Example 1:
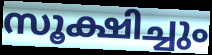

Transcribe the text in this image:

സൂക്ഷിച്ചും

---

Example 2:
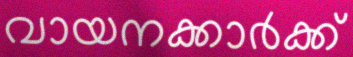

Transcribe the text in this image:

വായനക്കാർക്ക്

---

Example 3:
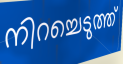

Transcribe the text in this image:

നിറച്ചെടുത്ത്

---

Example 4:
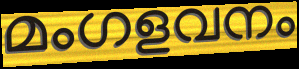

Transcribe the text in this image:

മംഗളവനം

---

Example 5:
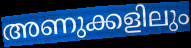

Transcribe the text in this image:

അണുക്കളിലും